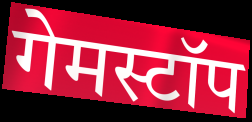
गेमस्टॉप